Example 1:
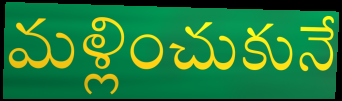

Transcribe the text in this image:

మళ్లించుకునే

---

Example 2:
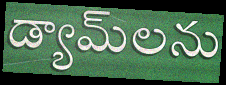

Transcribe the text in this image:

డ్యామ్‌లను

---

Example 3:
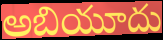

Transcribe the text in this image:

అబియూదు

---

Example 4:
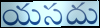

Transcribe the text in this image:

యసదు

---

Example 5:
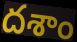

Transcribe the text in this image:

దశాం